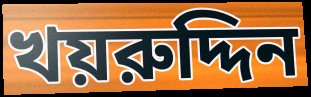
খয়রুদ্দিন